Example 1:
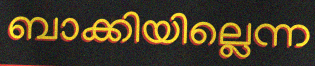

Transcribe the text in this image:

ബാക്കിയില്ലെന്ന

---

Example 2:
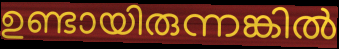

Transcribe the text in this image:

ഉണ്ടായിരുന്നങ്കിൽ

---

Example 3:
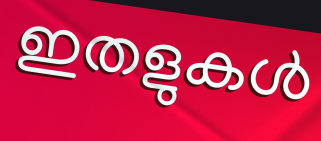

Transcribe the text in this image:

ഇതളുകൾ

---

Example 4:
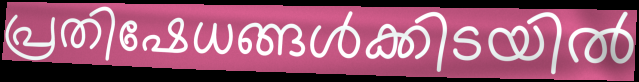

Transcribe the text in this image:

പ്രതിഷേധങ്ങൾക്കിടയിൽ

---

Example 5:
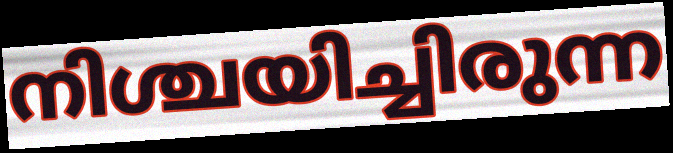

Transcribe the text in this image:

നിശ്ചയിച്ചിരുന്ന